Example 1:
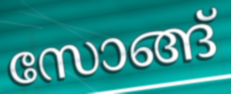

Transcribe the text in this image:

സോങ്ങ്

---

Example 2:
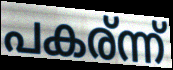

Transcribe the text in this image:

പകര്ന്ന്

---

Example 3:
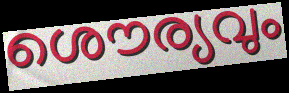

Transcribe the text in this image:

ശൌര്യവും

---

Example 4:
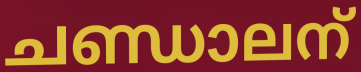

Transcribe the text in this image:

ചണ്ഡാലന്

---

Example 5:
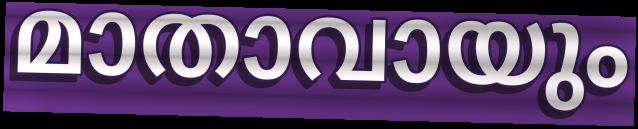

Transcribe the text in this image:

മാതാവായും